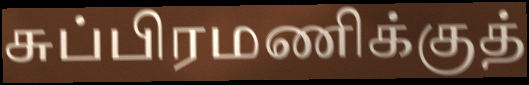
சுப்பிரமணிக்குத்